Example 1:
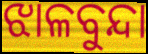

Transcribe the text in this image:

ଝାଳବୁନ୍ଦା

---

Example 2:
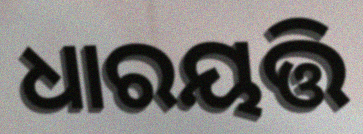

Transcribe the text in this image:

ଧାରୟତ୍ତି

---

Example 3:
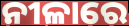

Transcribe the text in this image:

ନୀଳାରେ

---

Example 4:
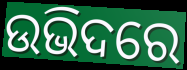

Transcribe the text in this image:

ଉଭିଦରେ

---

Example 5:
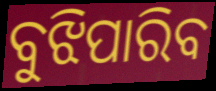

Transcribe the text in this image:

ବୁଝିପାରିବ